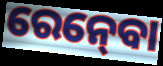
ରେନ୍‍ବୋ